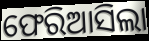
ଫେରିଆସିଲା